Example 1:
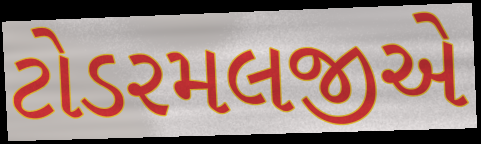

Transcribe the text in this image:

ટોડરમલજીએ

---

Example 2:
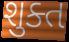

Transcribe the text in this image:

શુક્ત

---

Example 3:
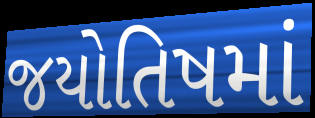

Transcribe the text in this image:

જયોતિષમાં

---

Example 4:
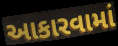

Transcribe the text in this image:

આકારવામાં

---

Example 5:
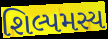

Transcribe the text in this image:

શિલ્પમસ્ય